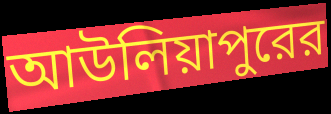
আউলিয়াপুরের